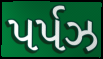
પર્પઝ